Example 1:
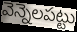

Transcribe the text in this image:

వెన్నెలపట్టు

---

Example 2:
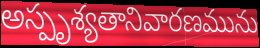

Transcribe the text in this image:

అస్పృశ్యతానివారణమును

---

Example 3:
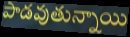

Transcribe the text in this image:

పాడవుతున్నాయి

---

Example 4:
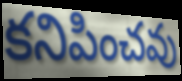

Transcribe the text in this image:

కనిపించవు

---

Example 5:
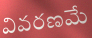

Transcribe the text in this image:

వివరణమే